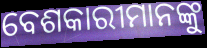
ବେଶକାରୀମାନଙ୍କୁ